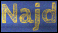
Najd